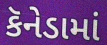
કૅનેડામાં